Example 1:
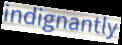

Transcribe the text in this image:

indignantly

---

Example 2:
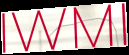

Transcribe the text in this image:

IWMI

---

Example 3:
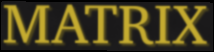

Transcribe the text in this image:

MATRIX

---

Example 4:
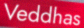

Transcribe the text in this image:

Veddhas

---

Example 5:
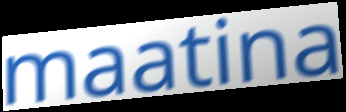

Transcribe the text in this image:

maatina